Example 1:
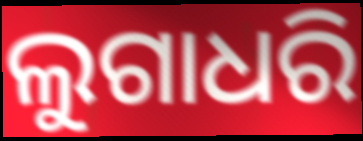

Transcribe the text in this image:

ଲୁଗାଧରି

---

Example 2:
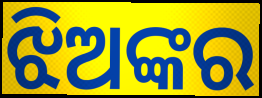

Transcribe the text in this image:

ଝିଅଙ୍କର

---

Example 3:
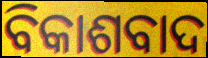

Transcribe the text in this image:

ବିକାଶବାଦ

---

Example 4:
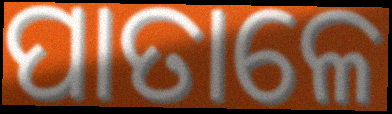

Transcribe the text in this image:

ପାତାଳେ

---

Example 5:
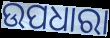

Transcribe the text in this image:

ଉପଧାରା